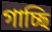
গাচ্ছি